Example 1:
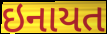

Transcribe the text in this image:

ઇનાયત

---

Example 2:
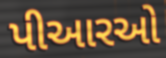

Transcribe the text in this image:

પીઆરઓ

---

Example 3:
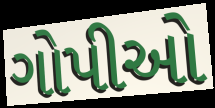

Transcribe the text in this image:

ગોપીઓ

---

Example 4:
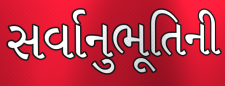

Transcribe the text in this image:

સર્વાનુભૂતિની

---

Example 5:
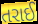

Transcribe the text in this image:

તરાઈ